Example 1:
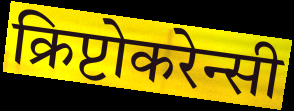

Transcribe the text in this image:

क्रिप्टोकरेन्सी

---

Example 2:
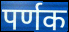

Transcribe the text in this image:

पर्णक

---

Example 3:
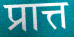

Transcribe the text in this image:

प्रात्त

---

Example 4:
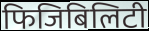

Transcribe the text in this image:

फिजिबिलिटी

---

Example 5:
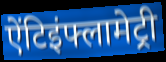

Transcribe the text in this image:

ऐंटिइंफ्लामेट्री